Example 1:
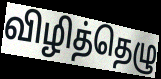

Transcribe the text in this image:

விழித்தெழு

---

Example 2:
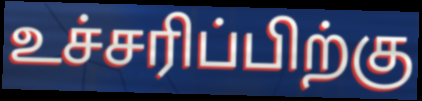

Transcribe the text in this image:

உச்சரிப்பிற்கு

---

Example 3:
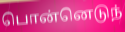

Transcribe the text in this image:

பொன்னெடுந்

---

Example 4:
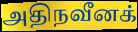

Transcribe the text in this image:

அதிநவீனக்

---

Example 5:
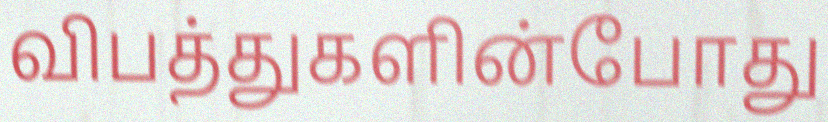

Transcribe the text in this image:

விபத்துகளின்போது